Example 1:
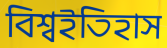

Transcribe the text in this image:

বিশ্বইতিহাস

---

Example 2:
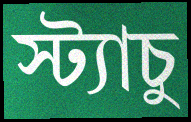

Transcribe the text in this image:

স্ট্যাচু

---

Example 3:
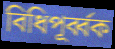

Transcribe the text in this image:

বিধিপূর্ব্বক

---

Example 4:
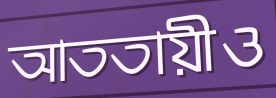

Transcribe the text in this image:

আততায়ীও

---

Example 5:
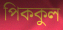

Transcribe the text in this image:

পিককুল